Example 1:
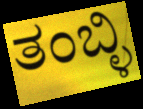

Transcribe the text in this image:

ತಂಬ್ಳಿ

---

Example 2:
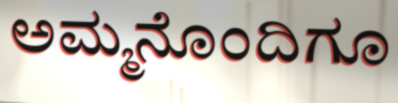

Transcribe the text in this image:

ಅಮ್ಮನೊಂದಿಗೂ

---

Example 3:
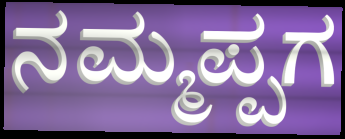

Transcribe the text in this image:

ನಮ್ಮಪ್ಪಗ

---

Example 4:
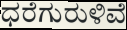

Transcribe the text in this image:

ಧರೆಗುರುಳಿವೆ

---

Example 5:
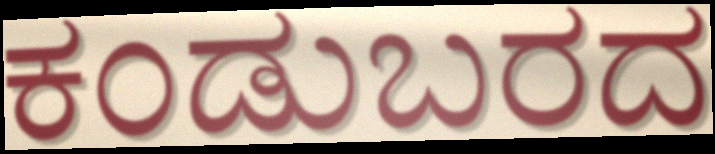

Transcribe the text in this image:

ಕಂಡುಬರದ